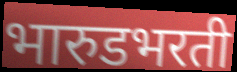
भारुडभरती